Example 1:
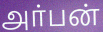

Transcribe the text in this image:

அர்பன்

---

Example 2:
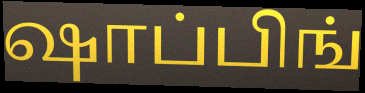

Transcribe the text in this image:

ஷாப்பிங்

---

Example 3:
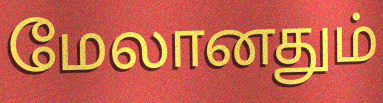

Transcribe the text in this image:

மேலானதும்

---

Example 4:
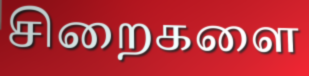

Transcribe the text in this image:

சிறைகளை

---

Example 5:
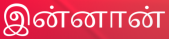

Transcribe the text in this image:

இன்னான்